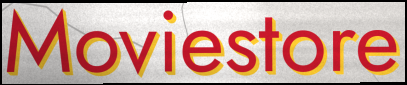
Moviestore